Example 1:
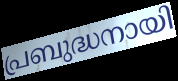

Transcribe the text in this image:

പ്രബുദ്ധനായി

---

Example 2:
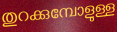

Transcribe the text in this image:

തുറക്കുമ്പോളുള്ള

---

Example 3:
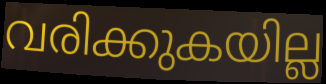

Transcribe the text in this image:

വരിക്കുകയില്ല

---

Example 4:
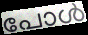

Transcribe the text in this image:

പോൾ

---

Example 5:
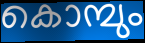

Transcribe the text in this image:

കൊമ്പും